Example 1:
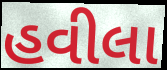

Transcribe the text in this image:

હવીલા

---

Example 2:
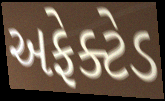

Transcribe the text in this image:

અફેક્ટેડ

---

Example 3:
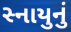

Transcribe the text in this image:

સ્નાયુનું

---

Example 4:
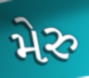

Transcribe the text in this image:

મેરુ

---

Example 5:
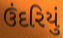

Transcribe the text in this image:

ઉંદરિયું